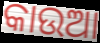
କାଉଆ